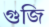
গুজি